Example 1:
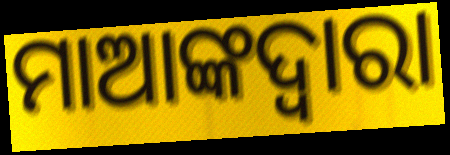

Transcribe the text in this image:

ମାଆଙ୍କଦ୍ଵାରା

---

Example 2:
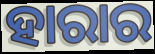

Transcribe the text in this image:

ହାରାର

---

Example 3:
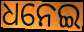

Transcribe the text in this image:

ଧନେଇ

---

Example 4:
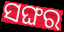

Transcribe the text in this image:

ସଙ୍ଘର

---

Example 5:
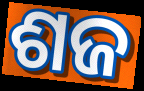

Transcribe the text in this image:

ଶଜ